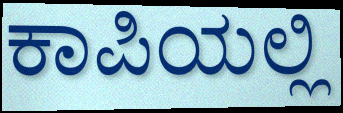
ಕಾಪಿಯಲ್ಲಿ